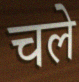
चले